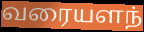
வரையளந்